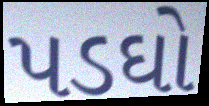
પડઘો